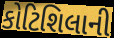
કોટિશિલાની